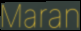
Maran